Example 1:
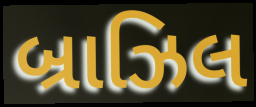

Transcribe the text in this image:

બ્રાઝિલ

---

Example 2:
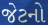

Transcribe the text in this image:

જેટનો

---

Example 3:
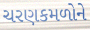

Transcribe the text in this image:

ચરણકમળોને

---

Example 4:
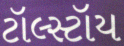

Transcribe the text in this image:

ટૉલ્સ્ટૉય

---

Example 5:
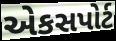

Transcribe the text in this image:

એકસપોર્ટ